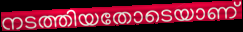
നടത്തിയതോടെയാണ്